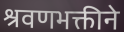
श्रवणभक्तीने